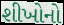
શીખોનો